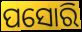
ପସୋରି